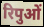
रिपुओं